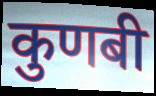
कुणबी